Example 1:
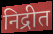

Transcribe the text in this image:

निद्रीत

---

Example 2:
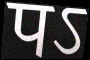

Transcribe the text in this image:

पऽ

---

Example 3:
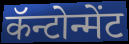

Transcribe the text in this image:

कॅन्टोन्मेंट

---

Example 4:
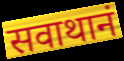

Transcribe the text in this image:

सवाथानं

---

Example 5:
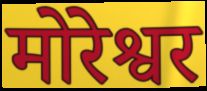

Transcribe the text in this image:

मोरेश्वर